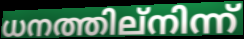
ധനത്തില്നിന്ന്